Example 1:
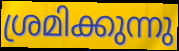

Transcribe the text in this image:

ശ്രമിക്കുന്നു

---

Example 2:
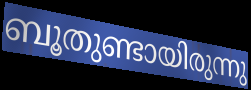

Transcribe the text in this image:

ബൂതുണ്ടായിരുന്നു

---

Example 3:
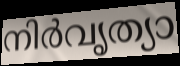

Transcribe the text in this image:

നിർവൃത്യാ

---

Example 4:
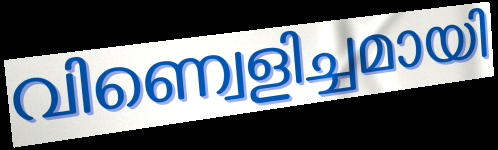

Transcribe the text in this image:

വിണ്വെളിച്ചമായി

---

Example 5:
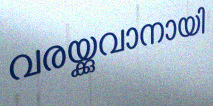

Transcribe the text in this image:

വരയ്ക്കുവാനായി